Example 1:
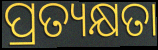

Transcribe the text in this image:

ପ୍ରତ୍ୟକ୍ଷତା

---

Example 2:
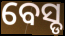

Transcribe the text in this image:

ବେସ୍ଡ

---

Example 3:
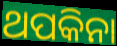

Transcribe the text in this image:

ଥପକିନା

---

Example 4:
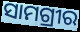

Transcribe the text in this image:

ସାମଗ୍ରୀର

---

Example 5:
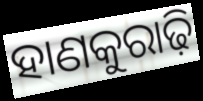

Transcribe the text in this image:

ହାଣକୁରାଢ଼ି